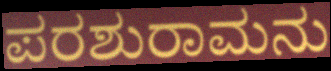
ಪರಶುರಾಮನು